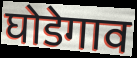
घोडेगाव